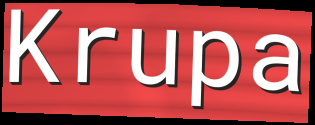
Krupa